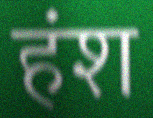
हंश